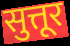
सुत्तूर